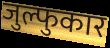
जुल्फुकार